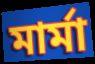
মার্মা